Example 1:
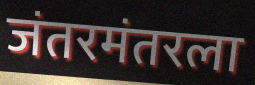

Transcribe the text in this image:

जंतरमंतरला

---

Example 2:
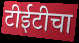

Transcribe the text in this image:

टीईटीचा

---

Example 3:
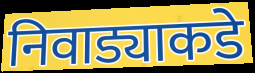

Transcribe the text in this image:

निवाड्याकडे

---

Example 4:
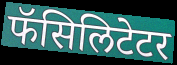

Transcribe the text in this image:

फॅसिलिटेटर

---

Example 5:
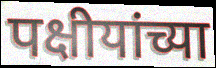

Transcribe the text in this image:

पक्षीयांच्या